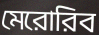
মেরোরিব